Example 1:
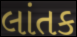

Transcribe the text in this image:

લાંતક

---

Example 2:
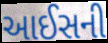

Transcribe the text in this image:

આઈસની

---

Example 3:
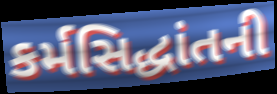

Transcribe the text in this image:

કર્મસિદ્ધાંતની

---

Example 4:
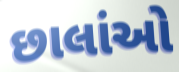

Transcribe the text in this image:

છાલાંઓ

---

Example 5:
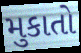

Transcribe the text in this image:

મુકાતો